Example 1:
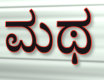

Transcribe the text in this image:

ಮಥ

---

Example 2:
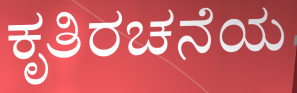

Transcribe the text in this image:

ಕೃತಿರಚನೆಯ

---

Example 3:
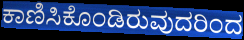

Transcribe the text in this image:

ಕಾಣಿಸಿಕೊಂಡಿರುವುದರಿಂದ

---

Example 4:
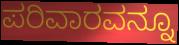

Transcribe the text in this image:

ಪರಿವಾರವನ್ನೂ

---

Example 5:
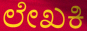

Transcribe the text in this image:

ಲೇಖಕಿ